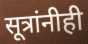
सूत्रांनीही